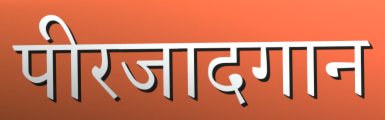
पीरजादगान